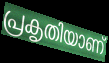
പ്രകൃതിയാണ്